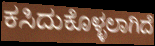
ಕಸಿದುಕೊಳ್ಳಲಾಗಿದೆ